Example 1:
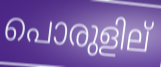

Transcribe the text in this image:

പൊരുളില്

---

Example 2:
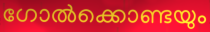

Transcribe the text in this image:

ഗോൽക്കൊണ്ടയും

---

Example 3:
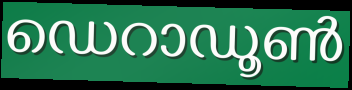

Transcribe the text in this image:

ഡെറാഡൂൺ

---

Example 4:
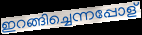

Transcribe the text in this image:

ഇറങ്ങിച്ചെന്നപ്പോള്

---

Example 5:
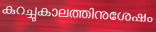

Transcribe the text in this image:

കുറച്ചുകാലത്തിനുശേഷം